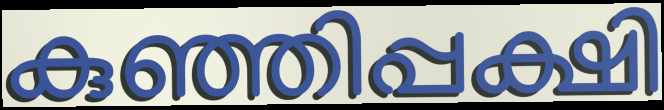
കുഞ്ഞിപ്പക്ഷി